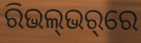
ରିଭଲ୍‌ଭର୍‌ରେ